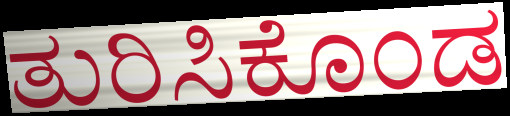
ತುರಿಸಿಕೊಂಡ